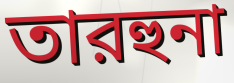
তারহুনা